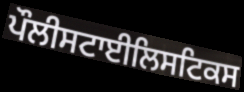
ਪੌਲੀਸਟਾਈਲਿਸਟਿਕਸ